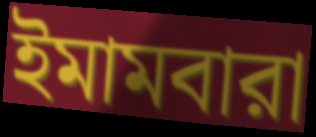
ইমামবারা